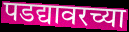
पडद्यावरच्या